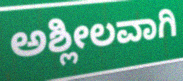
ಅಶ್ಲೀಲವಾಗಿ